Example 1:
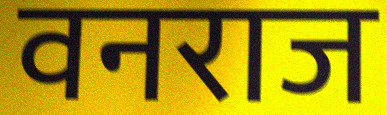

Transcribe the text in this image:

वनराज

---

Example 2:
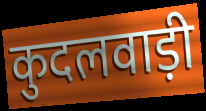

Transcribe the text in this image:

कुदलवाड़ी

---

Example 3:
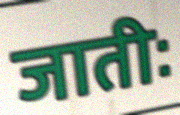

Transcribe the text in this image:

जातीः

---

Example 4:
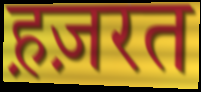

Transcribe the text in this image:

ह़ज़रत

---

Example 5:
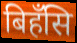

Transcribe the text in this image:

बिहँसि